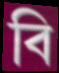
বি